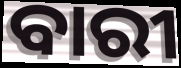
ବାରୀ